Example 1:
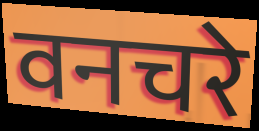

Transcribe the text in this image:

वनचरे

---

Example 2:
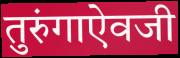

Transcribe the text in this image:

तुरुंगाऐवजी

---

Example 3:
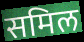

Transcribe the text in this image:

समिल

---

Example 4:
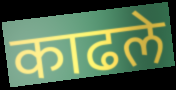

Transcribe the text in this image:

काढले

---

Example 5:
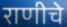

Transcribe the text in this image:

राणीचे